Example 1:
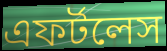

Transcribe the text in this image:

এফর্টলেস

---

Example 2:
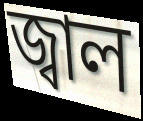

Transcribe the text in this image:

জ্বাল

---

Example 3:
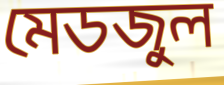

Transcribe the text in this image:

মেডজুল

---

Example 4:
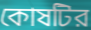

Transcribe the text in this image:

কোষটির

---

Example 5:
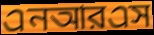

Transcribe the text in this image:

এনআরএস